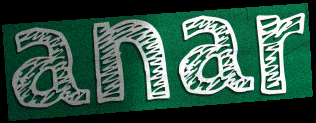
anar